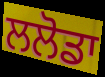
ਲਲੋਡਾ